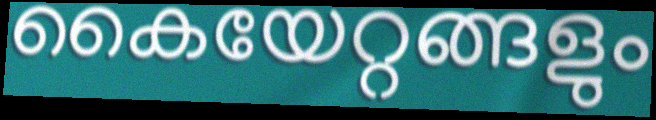
കൈയേറ്റങ്ങളും